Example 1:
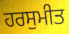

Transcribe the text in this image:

ਹਰਸੁਮੀਤ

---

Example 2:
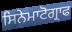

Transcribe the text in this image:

ਸਿਨੇਮਾਟੋਗ੍ਰਾਫ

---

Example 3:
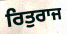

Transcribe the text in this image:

ਰਿਤੁਰਾਜ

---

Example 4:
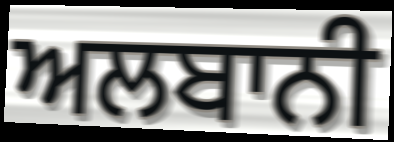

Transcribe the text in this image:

ਅਲਬਾਨੀ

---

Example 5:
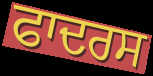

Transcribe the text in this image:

ਫਾਦਰਸ